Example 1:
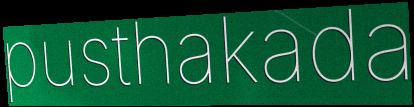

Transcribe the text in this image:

pusthakada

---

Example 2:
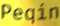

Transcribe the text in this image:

Peqin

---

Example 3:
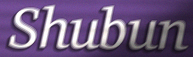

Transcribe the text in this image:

Shubun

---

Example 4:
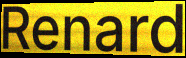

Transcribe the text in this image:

Renard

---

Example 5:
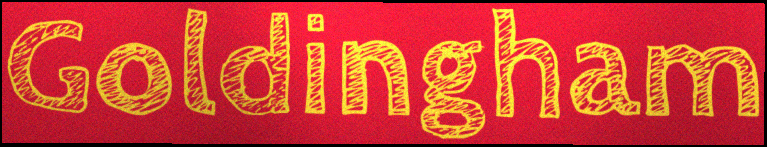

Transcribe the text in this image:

Goldingham